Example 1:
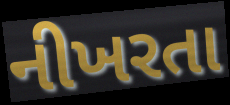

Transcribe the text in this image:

નીખરતા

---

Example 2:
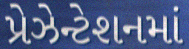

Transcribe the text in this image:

પ્રેઝેન્ટેશનમાં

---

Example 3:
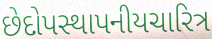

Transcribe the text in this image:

છેદોપસ્થાપનીયચારિત્ર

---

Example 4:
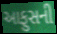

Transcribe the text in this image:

આફુસની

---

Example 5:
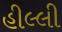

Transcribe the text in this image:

હીલ્લી